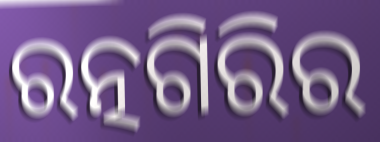
ରତ୍ନଗିରିର